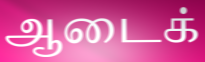
ஆடைக்